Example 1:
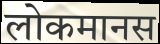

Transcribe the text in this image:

लोकमानस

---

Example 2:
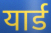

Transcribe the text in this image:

यार्ड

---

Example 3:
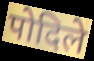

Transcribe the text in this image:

पोदिले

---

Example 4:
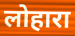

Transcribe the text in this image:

लोहारा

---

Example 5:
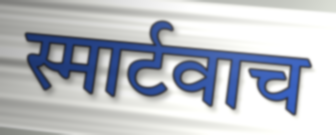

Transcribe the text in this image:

स्मार्टवाच